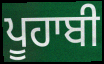
ਪੂਹਾਬੀ